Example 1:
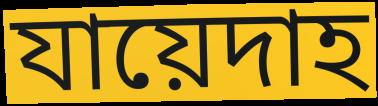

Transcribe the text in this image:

যায়েদাহ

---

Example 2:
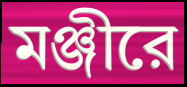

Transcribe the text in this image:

মঞ্জীরে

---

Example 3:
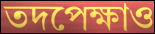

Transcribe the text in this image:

তদপেক্ষাও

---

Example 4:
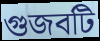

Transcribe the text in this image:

গুজবটি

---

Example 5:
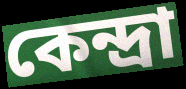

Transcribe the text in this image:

কেন্দ্রা